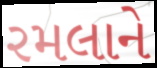
રમલાને